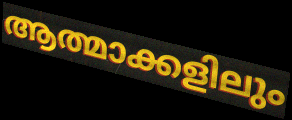
ആത്മാക്കളിലും